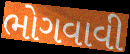
ભોગવાવી